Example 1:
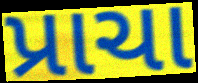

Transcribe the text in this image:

પ્રાચા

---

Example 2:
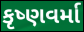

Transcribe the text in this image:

કૃષ્ણવર્મા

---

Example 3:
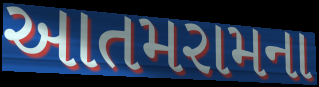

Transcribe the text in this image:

આતમરામના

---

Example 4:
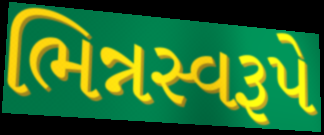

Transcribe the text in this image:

ભિન્નસ્વરૂપે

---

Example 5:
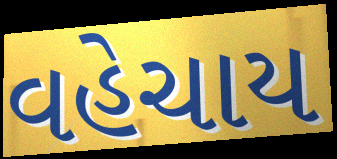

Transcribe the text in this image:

વહેચાય